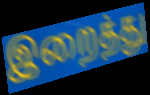
இறைத்து